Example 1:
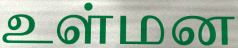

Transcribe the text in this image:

உள்மன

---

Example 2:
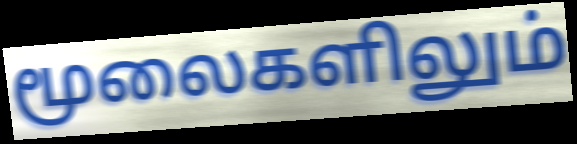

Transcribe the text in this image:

மூலைகளிலும்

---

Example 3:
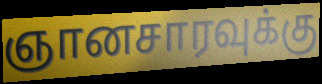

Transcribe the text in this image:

ஞானசாரவுக்கு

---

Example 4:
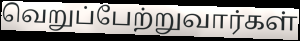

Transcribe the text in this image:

வெறுப்பேற்றுவார்கள்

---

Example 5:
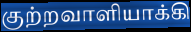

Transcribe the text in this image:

குற்றவாளியாக்கி